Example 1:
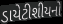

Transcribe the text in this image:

ડાયેટીશીયનો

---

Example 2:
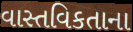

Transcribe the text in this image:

વાસ્તવિકતાના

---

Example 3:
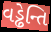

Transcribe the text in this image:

વડ્ઢેન્તિ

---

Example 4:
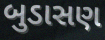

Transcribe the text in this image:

બુડાસણ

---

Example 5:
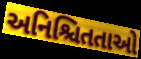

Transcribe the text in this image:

અનિશ્ચિતતાઓ